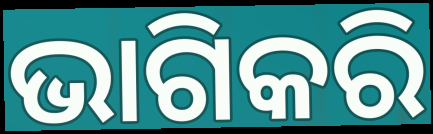
ଭାଗିକରି